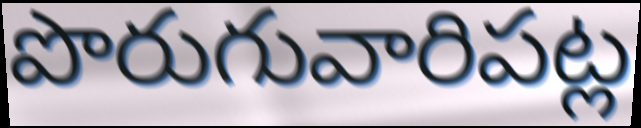
పొరుగువారిపట్ల